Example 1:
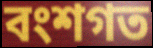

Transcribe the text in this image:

বংশগত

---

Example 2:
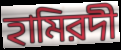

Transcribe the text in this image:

হামিরদী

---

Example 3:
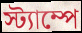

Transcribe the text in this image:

স্ট্যাম্পে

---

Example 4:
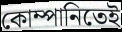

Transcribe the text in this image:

কোম্পানিতেই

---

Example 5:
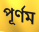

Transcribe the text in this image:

পূর্ণম